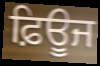
ਫ਼ਿਊਜ